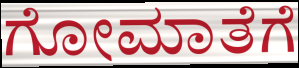
ಗೋಮಾತೆಗೆ